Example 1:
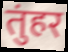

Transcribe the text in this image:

तुंहर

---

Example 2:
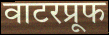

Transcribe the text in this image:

वाटरप्रूफ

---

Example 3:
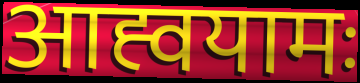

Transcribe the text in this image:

आह्वयामः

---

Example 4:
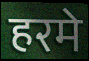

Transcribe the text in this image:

हरमे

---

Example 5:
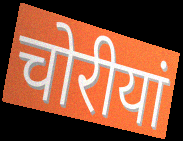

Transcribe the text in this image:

चोरीयां